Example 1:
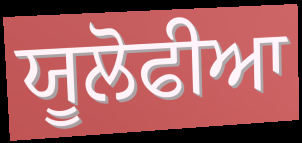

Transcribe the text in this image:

ਯੂਲੋਫੀਆ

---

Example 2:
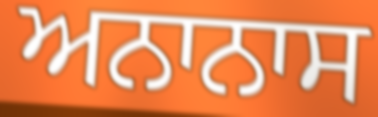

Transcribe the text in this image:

ਅਨਾਨਾਸ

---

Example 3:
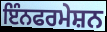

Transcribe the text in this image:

ਇੰਨਫਰਮੇਸ਼ਨ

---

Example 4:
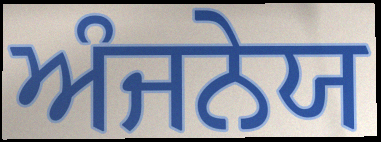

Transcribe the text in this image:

ਅੰਜਨੇਯ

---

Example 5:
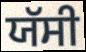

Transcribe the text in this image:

ਯੱਸੀ